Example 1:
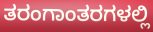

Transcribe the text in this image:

ತರಂಗಾಂತರಗಳಲ್ಲಿ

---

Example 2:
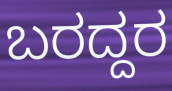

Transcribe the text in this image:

ಬರದ್ದರ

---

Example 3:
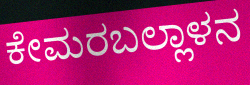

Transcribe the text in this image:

ಕೇಮರಬಲ್ಲಾಳನ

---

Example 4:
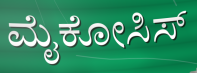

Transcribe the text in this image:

ಮೈಕೋಸಿಸ್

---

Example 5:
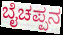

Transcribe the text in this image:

ಬೈಚಪ್ಪನ